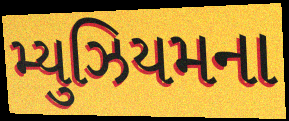
મ્યુઝિયમના